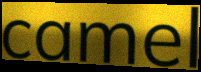
camel